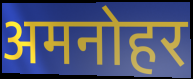
अमनोहर